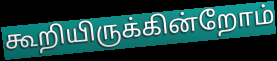
கூறியிருக்கின்றோம்